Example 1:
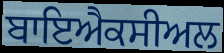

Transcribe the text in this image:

ਬਾਇਐਕਸੀਅਲ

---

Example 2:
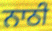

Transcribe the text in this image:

ਨਾਠੀ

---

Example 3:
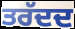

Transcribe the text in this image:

ਤਰੱਦਦ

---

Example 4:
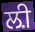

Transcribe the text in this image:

ਲ਼ੀ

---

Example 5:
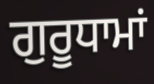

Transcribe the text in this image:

ਗੁਰੂਧਾਮਾਂ